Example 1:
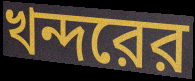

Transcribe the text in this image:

খন্দরের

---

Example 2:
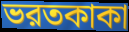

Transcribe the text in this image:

ভরতকাকা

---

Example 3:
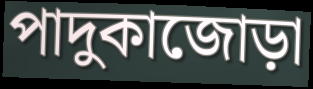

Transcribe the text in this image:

পাদুকাজোড়া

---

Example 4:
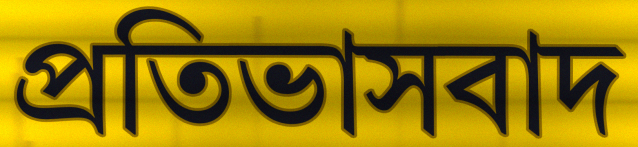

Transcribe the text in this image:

প্রতিভাসবাদ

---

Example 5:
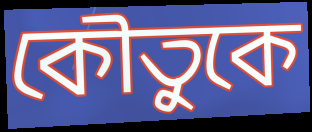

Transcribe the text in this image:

কৌতুকে